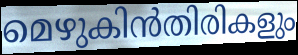
മെഴുകിൻതിരികളും